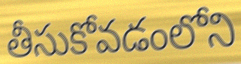
తీసుకోవడంలోని